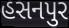
હસનપુર